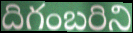
దిగంబరిని